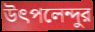
উৎপলেন্দুর